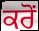
ਕਰੋਂ